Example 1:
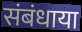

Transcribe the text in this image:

संबंधाया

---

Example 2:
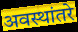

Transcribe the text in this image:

अवस्थांतरे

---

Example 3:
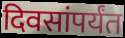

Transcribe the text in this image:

दिवसांपर्यंत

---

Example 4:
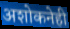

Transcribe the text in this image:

अशोकनेही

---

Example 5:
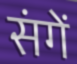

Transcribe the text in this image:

संगें